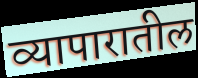
व्यापारातील